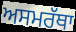
ਅਸਮਰੱਥਾ